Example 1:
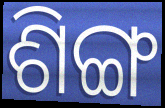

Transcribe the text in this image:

ଶିଙ୍ଗ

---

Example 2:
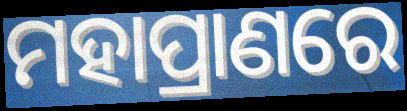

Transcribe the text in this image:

ମହାପ୍ରାଣରେ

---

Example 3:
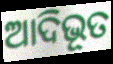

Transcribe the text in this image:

ଆଦିଭୂତ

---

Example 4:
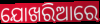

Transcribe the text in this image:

ଯୋଖରିଆରେ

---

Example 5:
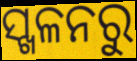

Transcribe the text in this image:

ସ୍ଖଳନରୁ